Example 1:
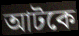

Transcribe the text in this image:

আটকে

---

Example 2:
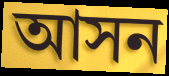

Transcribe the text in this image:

আসন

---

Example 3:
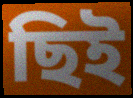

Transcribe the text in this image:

ছিই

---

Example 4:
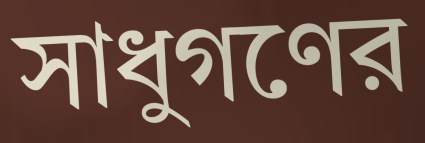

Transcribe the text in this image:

সাধুগণের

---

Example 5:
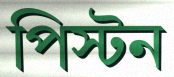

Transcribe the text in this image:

পিস্টন